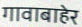
गावाबाहेर